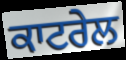
ਕਾਟਰੇਲ